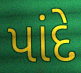
પાંદે